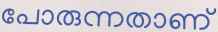
പോരുന്നതാണ്